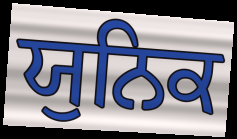
ਯੁਨਿਕ